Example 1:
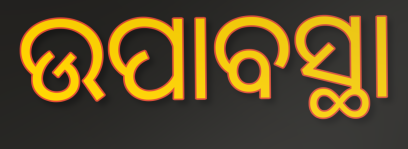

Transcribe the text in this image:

ଉପାବସ୍ଥା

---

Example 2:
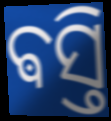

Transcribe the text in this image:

ଵସ୍ତି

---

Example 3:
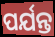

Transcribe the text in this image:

ପର୍ଯନ୍ତ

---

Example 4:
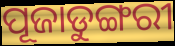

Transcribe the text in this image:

ପୂଜାଡୁଙ୍ଗରୀ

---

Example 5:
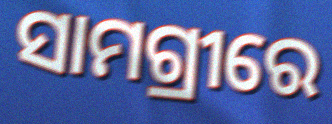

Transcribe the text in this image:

ସାମଗ୍ରୀରେ